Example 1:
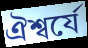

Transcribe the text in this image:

ঐশ্বর্যে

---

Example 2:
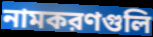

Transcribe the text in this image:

নামকরণগুলি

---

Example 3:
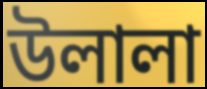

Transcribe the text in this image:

উলালা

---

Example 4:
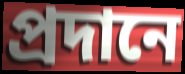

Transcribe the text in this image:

প্রদানে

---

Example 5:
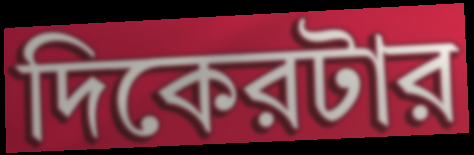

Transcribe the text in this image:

দিকেরটার